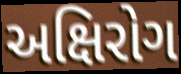
અક્ષિરોગ